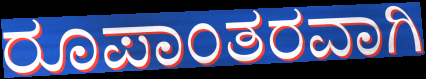
ರೂಪಾಂತರವಾಗಿ